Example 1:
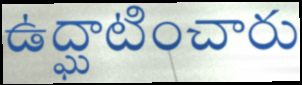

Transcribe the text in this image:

ఉద్ఘాటించారు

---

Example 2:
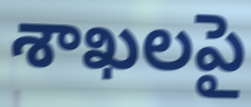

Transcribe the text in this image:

శాఖలపై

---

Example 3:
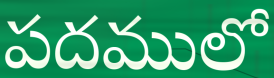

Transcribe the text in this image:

పదములో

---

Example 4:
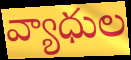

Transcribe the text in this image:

వ్యాధుల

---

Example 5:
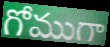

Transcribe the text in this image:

గోముగా